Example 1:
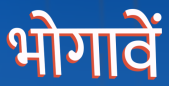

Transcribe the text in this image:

भोगावें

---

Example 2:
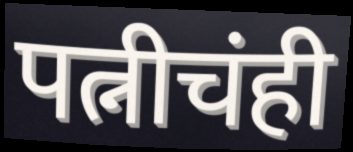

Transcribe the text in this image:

पत्नीचंही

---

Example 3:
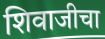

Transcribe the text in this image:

शिवाजीचा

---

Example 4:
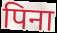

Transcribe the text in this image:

पिना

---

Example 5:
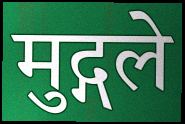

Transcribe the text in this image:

मुद्गले